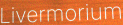
Livermorium